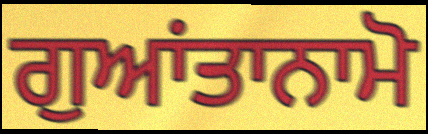
ਗੁਆਂਤਾਨਾਮੋ